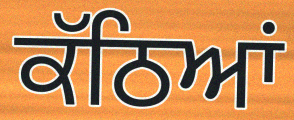
ਕੱਠਿਆਂ